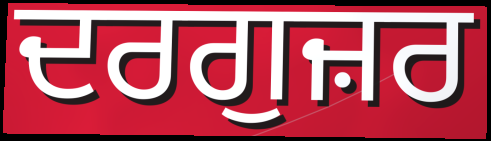
ਦਰਗੁਜ਼ਰ